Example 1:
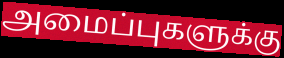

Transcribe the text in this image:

அமைப்புகளுக்கு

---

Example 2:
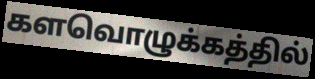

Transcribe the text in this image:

களவொழுக்கத்தில்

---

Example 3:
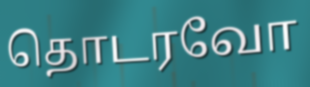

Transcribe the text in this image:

தொடரவோ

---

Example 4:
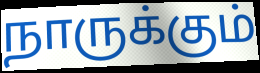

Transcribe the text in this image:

நாருக்கும்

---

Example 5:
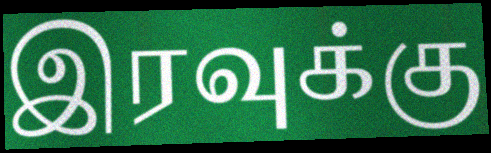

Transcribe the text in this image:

இரவுக்கு